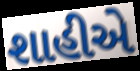
શાહીએ